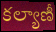
కల్యాణీ